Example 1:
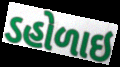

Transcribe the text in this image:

ડહોળાઇ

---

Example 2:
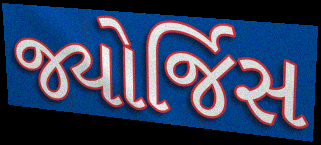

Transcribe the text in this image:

જ્યોર્જિસ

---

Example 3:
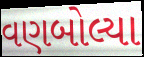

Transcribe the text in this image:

વણબોલ્યા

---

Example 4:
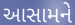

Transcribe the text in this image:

આસામને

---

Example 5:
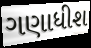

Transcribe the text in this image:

ગણાધીશ